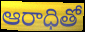
ఆరాధితో